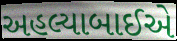
અહલ્યાબાઈએ